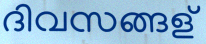
ദിവസങ്ങള്